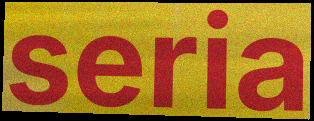
seria